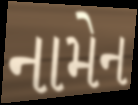
નામેન